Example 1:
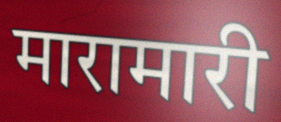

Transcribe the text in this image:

मारामारी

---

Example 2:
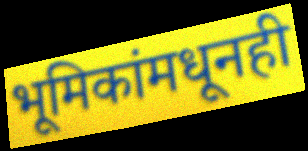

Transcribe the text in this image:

भूमिकांमधूनही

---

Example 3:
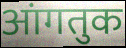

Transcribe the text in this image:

आंगतुक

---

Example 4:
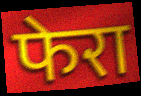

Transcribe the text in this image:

फेरा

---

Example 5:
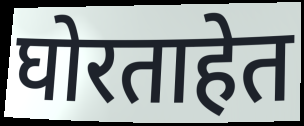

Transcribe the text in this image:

घोरताहेत